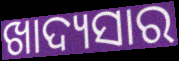
ଖାଦ୍ୟସାର